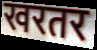
खरतर